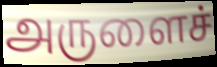
அருளைச்